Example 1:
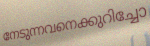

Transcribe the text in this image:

നേടുന്നവനെക്കുറിച്ചോ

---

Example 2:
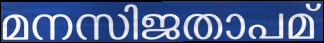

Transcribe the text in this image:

മനസിജതാപമ്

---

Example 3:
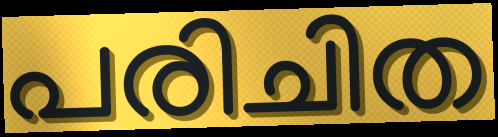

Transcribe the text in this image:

പരിചിത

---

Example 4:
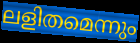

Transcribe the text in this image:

ലളിതമെന്നും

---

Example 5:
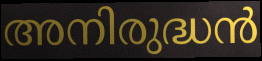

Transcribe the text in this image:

അനിരുദ്ധൻ